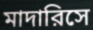
মাদারিসে